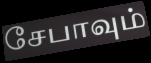
சேபாவும்